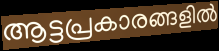
ആട്ടപ്രകാരങ്ങളിൽ